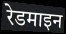
रेडमाइन